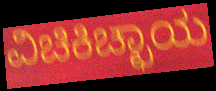
ವಿಚಿಕಿಚ್ಛಾಯ